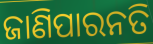
ଜାଣିପାରନତି